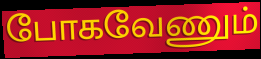
போகவேணும்